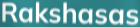
Rakshasas